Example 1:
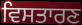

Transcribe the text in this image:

ਵਿਸਤਾਰਣ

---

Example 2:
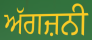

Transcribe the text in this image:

ਅੱਗਜ਼ਨੀ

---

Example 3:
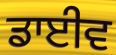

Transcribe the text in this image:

ਡਾਈਵ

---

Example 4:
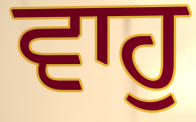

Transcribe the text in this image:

ਵਾਹੁ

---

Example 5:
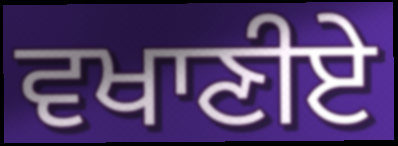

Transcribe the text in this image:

ਵਖਾਣੀਏ